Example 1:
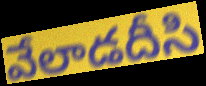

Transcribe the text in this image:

వేలాడదీసి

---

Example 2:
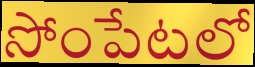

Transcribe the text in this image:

సోంపేటలో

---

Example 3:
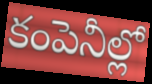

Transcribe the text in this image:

కంపెనీల్లో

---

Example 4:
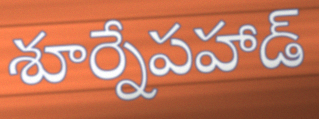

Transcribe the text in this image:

శూర్నేపహాడ్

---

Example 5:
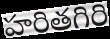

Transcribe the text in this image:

హరితగిరి